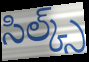
సిల్క్స్